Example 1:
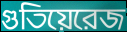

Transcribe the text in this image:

গুতিয়েরেজ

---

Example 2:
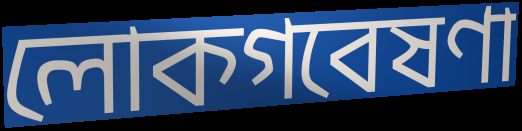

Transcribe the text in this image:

লোকগবেষণা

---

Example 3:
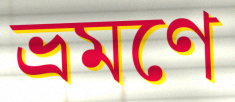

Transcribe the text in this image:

ভ্রমণে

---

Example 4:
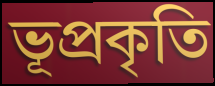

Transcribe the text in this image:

ভূপ্রকৃতি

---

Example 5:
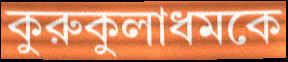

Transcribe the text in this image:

কুরুকুলাধমকে